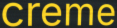
creme